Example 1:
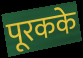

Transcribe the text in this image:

पूरकके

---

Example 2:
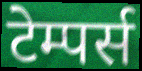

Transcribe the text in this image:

टेम्पर्स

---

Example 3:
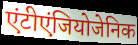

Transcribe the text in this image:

एंटीएंजियोजेनिक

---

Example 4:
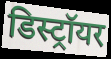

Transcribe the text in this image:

डिस्‍ट्रॉयर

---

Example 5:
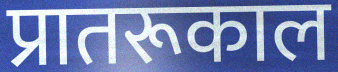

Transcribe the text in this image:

प्रातरूकाल